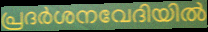
പ്രദർശനവേദിയിൽ